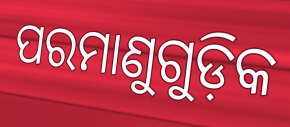
ପରମାଣୁଗୁଡ଼ିକ